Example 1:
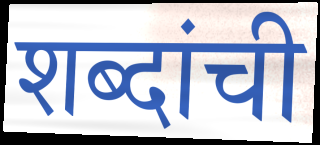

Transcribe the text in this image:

शब्दांची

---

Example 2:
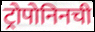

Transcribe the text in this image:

ट्रोपोनिनची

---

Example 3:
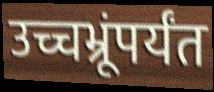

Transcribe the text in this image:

उच्चभ्रूंपर्यंत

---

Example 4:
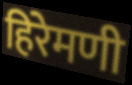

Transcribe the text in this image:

हिरेमणी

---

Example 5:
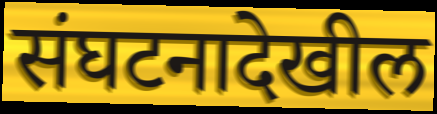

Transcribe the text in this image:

संघटनादेखील